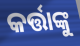
କର୍ତ୍ତାଙ୍କୁ